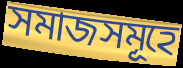
সমাজসমূহে